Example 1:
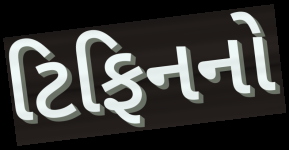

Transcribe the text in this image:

ટિફિનનો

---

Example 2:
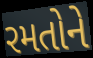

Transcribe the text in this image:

રમતોને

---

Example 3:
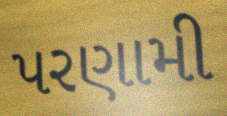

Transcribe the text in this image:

પરણામી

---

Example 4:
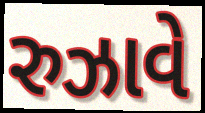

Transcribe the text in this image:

રુઝાવે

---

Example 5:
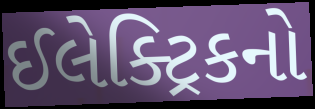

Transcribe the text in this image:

ઈલેક્ટ્રિકનો